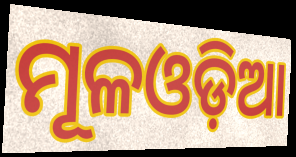
ମୂଳଓଡ଼ିଆ